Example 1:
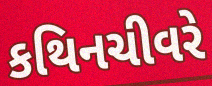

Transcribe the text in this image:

કથિનચીવરે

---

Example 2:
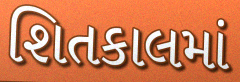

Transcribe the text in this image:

શિતકાલમાં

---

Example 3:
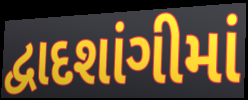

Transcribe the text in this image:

દ્વાદશાંગીમાં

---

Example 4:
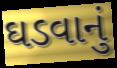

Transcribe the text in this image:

ઘડવાનું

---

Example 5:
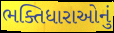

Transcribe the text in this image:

ભક્તિધારાઓનું